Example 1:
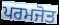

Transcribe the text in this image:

ਪਰਮਜੋਤ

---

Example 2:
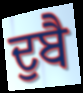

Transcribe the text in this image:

ਦੁਬੈ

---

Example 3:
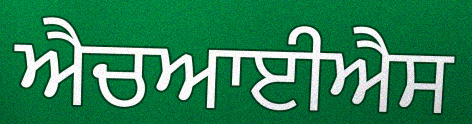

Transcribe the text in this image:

ਐਚਆਈਐਸ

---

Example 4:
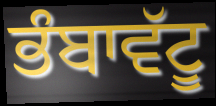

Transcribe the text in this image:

ਭੰਬਾਵੱਟੂ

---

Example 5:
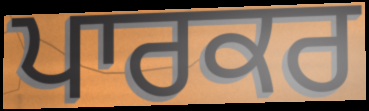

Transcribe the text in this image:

ਪਾਰਕਰ